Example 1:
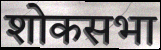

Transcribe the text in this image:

शोकसभा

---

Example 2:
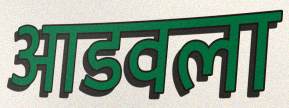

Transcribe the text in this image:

आडवला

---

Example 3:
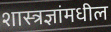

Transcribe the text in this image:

शास्त्रज्ञांमधील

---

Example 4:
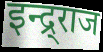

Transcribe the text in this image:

इन्द्र्राज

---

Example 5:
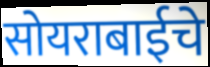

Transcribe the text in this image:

सोयराबाईचे